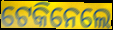
ଟେକିନେଲେ